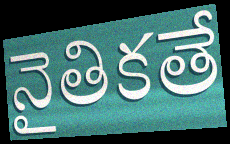
నైతికతే